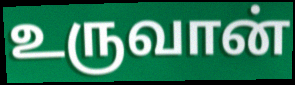
உருவான்